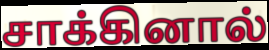
சாக்கினால்